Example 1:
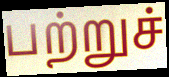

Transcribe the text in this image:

பற்றுச்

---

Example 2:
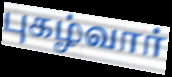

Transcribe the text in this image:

புகழ்வார்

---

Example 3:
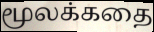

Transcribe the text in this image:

மூலக்கதை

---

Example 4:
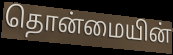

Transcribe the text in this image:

தொன்மையின்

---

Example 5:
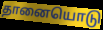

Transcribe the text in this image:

தானையொடு